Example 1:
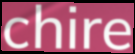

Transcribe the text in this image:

chire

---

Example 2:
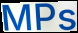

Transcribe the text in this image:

MPs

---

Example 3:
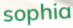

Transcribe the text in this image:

sophia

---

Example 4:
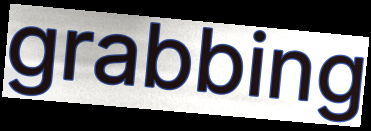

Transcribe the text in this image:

grabbing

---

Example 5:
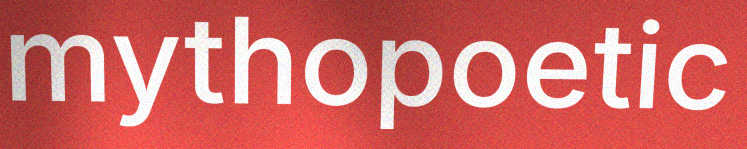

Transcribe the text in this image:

mythopoetic